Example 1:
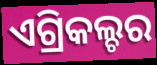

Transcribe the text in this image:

ଏଗ୍ରିକଲ୍ଚର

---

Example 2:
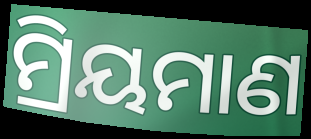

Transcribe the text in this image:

ମ୍ରିୟମାଣ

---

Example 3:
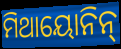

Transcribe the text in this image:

ମିଥାୟୋନିନ୍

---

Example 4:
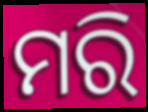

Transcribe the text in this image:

ମରି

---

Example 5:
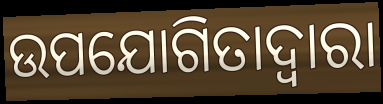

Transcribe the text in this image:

ଉପଯୋଗିତାଦ୍ୱାରା